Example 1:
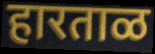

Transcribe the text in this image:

हारताळ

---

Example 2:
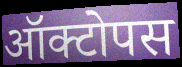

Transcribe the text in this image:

ऑक्टोपस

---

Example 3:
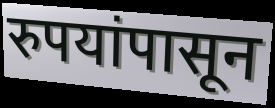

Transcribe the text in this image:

रुपयांपासून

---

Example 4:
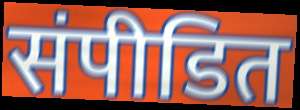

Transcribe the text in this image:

संपीडित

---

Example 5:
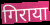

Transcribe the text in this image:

गिराया